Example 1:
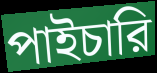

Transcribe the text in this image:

পাইচারি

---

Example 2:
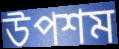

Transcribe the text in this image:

উপশম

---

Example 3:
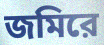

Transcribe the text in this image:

জমিরে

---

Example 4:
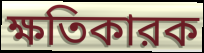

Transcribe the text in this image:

ক্ষতিকারক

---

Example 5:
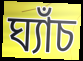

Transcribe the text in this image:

ঘ্যাঁচ